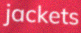
jackets